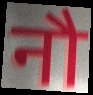
नौ